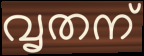
വൃതന്